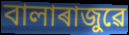
বালাৰাজুৱে